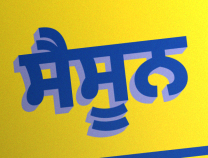
ਸੈਸੂਨ